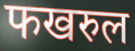
फखरुल